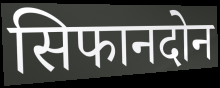
सिफानदोन